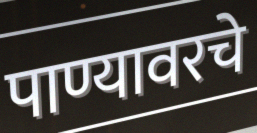
पाण्यावरचे